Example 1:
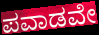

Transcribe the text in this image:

ಪವಾಡವೇ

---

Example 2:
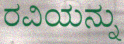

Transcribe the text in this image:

ರವಿಯನ್ನು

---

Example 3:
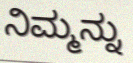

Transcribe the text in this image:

ನಿಮ್ಮನ್ನು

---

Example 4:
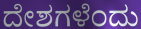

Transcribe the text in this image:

ದೇಶಗಳೆಂದು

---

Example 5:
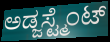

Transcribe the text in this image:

ಅಡ್ಜಸ್ಟ್ಮೆಂಟ್